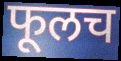
फूलच